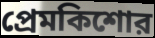
প্রেমকিশোর